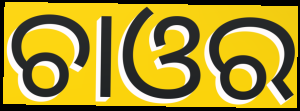
ଚାଓର